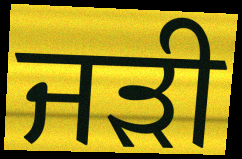
ਜੜੀ